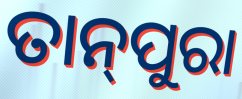
ତାନ୍‌ପୁରା